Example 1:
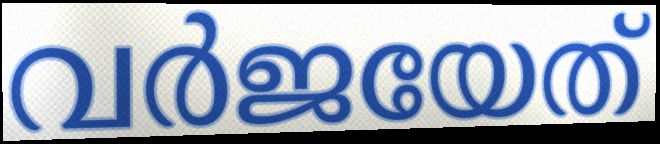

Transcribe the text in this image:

വർജയേത്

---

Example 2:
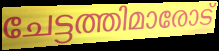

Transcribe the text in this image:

ചേട്ടത്തിമാരോട്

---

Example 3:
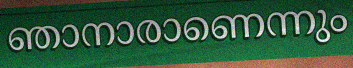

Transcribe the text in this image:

ഞാനാരാണെന്നും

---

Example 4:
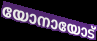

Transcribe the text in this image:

യോനായോട്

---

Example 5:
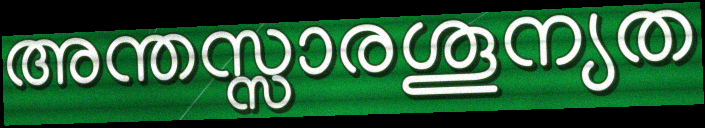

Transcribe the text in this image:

അന്തസ്സാരശൂന്യത